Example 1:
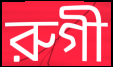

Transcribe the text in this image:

ৰুগী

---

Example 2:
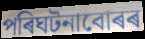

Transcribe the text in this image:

পৰিঘটনাবোৰৰ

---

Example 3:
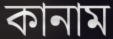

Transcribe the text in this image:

কানাম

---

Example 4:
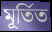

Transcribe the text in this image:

মূৰ্তিত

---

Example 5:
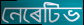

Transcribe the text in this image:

নেৰেটিভ